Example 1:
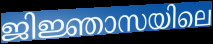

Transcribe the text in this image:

ജിജ്ഞാസയിലെ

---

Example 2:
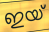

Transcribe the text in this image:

ഇയ്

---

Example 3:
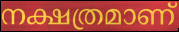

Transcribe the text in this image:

നക്ഷത്രമാണ്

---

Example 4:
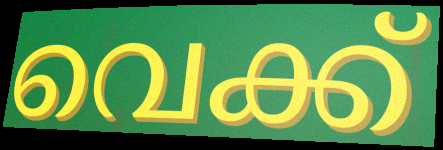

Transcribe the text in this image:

വെക്ക്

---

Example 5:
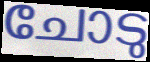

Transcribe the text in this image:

ചോടു